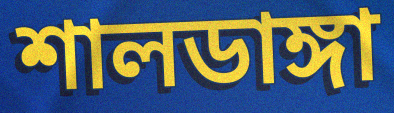
শালডাঙ্গা